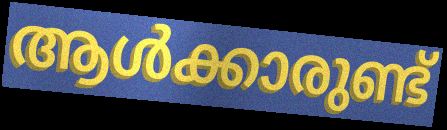
ആൾക്കാരുണ്ട്